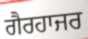
ਗੈਰਹਾਜਰ